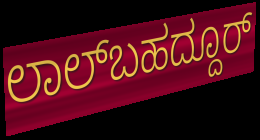
ಲಾಲ್‌ಬಹದ್ದೂರ್